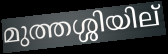
മുത്തശ്ശിയില്